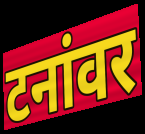
टनांवर